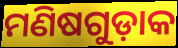
ମଣିଷଗୁଡ଼ାକ